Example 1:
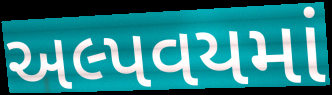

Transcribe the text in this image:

અલ્પવયમાં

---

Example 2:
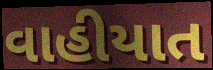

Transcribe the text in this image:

વાહીયાત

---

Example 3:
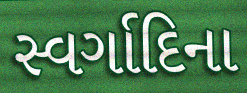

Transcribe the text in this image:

સ્વર્ગાદિના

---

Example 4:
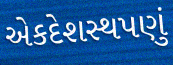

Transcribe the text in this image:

એકદેશસ્થપણું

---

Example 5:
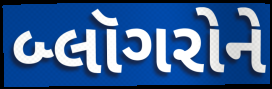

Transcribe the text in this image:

બ્લૉગરોને